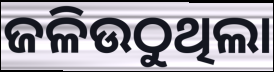
ଜଳିଉଠୁଥିଲା